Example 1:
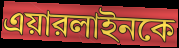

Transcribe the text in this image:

এয়ারলাইনকে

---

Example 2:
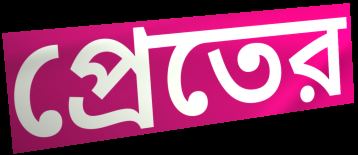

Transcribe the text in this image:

প্রেতের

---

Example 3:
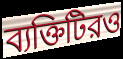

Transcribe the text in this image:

ব্যক্তিটিরও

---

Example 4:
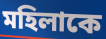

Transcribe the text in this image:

মহিলাকে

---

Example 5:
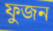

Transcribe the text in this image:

ফুজন